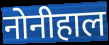
नोनीहाल